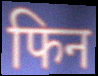
फिन